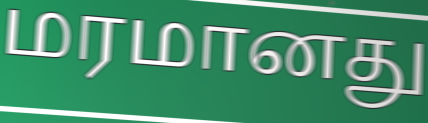
மரமானது